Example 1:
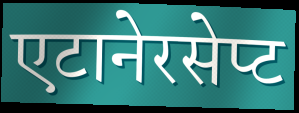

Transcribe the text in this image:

एटानेरसेप्ट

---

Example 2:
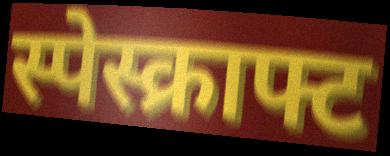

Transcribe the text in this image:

स्पेस्क्राफ्ट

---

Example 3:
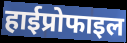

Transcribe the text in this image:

हाईप्रोफाइल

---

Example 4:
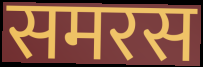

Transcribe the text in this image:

समरस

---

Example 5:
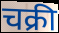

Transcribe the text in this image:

चक्री